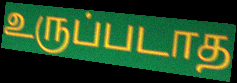
உருப்படாத